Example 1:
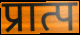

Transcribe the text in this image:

प्रात्प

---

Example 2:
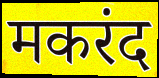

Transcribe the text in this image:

मकरंद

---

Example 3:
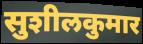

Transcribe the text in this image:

सुशीलकुमार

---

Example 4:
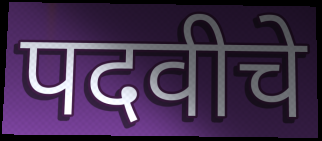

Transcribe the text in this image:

पदवीचे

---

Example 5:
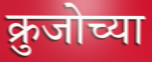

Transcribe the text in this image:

क्रुजोच्या